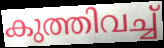
കുത്തിവച്ച്